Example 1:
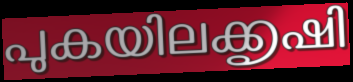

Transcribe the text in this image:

പുകയിലക്കൃഷി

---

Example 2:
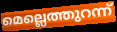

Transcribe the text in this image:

മെല്ലെത്തുറന്ന്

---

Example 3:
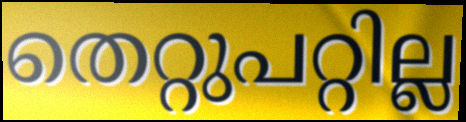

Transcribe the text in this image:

തെറ്റുപറ്റില്ല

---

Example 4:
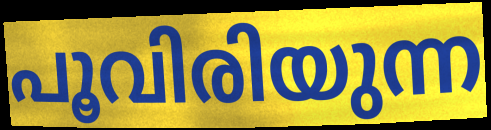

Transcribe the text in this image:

പൂവിരിയുന്ന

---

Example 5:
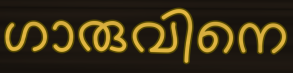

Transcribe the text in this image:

ഗാരുവിനെ